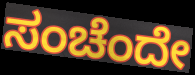
ಸಂಚೆಂದೇ